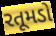
રતૂમડો